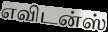
எவிடன்ஸ்